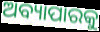
ଅବ୍ୟାପାରକୁ